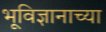
भूविज्ञानाच्या